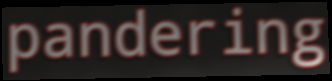
pandering